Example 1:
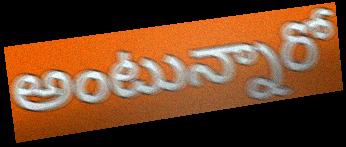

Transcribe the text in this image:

అంటున్నారో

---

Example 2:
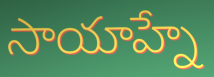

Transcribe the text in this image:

సాయాహ్నే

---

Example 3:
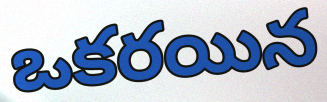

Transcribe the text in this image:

ఒకరయిన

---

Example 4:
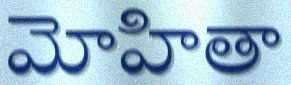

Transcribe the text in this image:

మోహితా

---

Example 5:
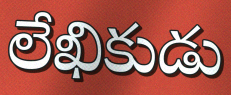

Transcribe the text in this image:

లేఖికుడు